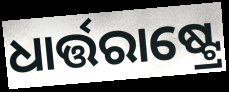
ଧାର୍ତ୍ତରାଷ୍ଟ୍ରେ